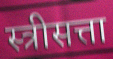
स्त्रीसत्ता